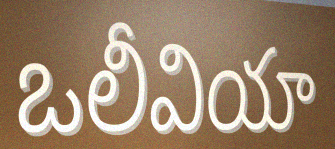
ఒలీవియా